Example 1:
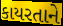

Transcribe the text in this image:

કાયરતાને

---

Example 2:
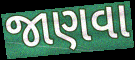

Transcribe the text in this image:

જાણવા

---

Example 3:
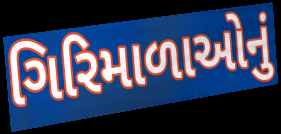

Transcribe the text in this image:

ગિરિમાળાઓનું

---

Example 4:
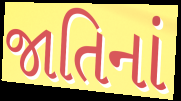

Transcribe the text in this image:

જાતિનાં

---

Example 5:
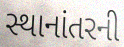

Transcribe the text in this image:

સ્થાનાંતરની